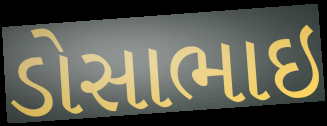
ડોસાભાઇ